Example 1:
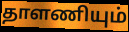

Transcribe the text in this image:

தாளணியும்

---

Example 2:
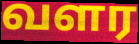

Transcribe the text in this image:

வளர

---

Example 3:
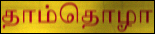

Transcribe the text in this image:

தாம்தொழா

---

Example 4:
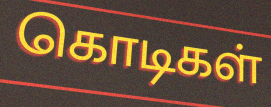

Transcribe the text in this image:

கொடிகள்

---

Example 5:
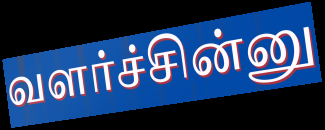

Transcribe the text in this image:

வளர்ச்சின்னு